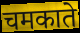
चमकाते